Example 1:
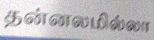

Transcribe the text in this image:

தன்னலமில்லா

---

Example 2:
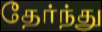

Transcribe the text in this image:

தேர்ந்து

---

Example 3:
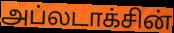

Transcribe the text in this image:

அப்லடாக்சின்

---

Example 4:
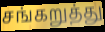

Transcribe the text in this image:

சங்கறுத்து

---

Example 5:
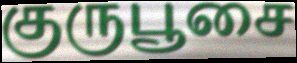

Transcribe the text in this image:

குருபூசை